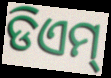
ଡିଏମ୍